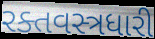
રક્તવસ્ત્રધારી